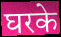
घरके